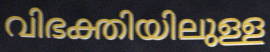
വിഭക്തിയിലുള്ള